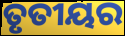
ତୃତୀୟର